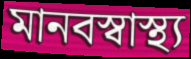
মানবস্বাস্থ্য